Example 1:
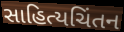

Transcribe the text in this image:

સાહિત્યચિંતન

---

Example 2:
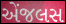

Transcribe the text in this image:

એંજલસ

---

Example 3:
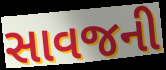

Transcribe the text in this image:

સાવજની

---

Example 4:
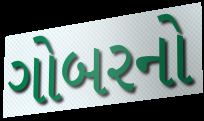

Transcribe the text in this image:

ગોબરનો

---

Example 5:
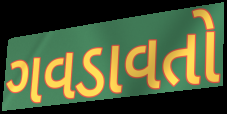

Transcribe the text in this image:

ગવડાવતો